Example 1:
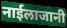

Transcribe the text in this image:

नाईलाजानी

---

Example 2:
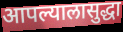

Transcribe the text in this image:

आपल्यालासुद्धा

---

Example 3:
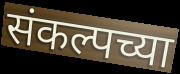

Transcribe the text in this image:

संकल्पच्या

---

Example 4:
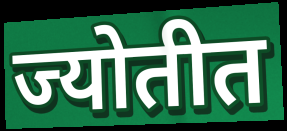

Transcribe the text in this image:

ज्योतीत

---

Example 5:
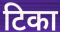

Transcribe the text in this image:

टिका